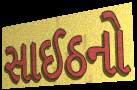
સાઈઠનો